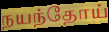
நயந்தோய்